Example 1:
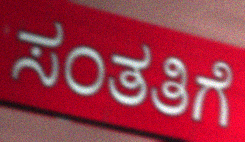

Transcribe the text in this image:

ಸಂತತಿಗೆ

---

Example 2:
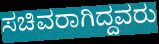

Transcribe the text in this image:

ಸಚಿವರಾಗಿದ್ದವರು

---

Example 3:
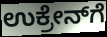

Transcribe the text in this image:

ಉಕ್ರೇನ್‌ಗೆ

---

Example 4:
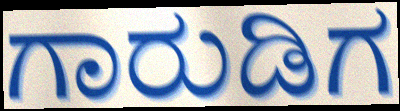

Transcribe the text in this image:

ಗಾರುಡಿಗ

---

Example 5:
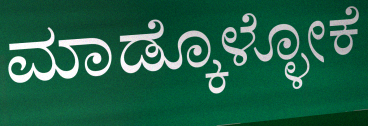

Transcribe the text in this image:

ಮಾಡ್ಕೊಳ್ಳೋಕೆ